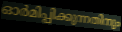
ഓർമിപ്പിക്കുന്നതിനും